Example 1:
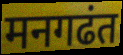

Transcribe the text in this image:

मनगढंत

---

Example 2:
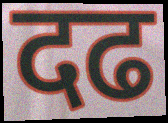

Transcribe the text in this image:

दढ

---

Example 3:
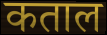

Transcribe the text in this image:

कताल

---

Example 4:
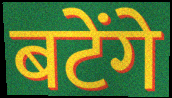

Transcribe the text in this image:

बटेंगे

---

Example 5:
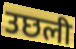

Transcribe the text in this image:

उछली